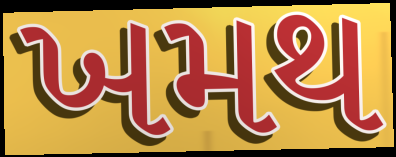
ખમથ